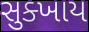
સુક્ખાય